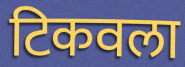
टिकवला